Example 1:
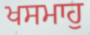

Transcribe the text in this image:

ਖਸਮਾਹੁ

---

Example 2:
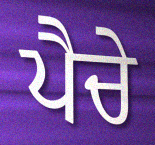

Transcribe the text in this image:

ਪੈਚੇ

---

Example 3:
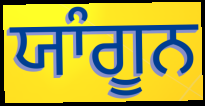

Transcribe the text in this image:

ਯਾੰਗੂਨ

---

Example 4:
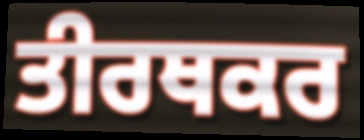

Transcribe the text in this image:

ਤੀਰਥਕਰ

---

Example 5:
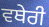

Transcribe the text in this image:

ਵਥੇਰੀ